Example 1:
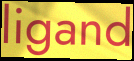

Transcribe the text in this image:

ligand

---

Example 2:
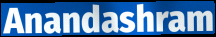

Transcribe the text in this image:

Anandashram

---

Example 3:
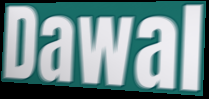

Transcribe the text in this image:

Dawal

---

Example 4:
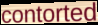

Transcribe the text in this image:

contorted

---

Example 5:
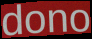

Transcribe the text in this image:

dono